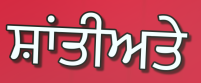
ਸ਼ਾਂਤੀਅਤੇ